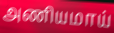
அணியமாய்